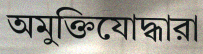
অমুক্তিযোদ্ধারা